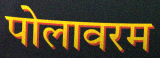
पोलावरम